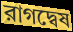
রাগদ্বেষ